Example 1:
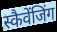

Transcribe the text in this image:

स्कैवेंजिंग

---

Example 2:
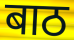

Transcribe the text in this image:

बाठ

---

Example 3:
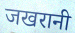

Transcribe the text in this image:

जखरानी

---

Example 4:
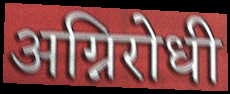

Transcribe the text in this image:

अग्निरोधी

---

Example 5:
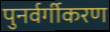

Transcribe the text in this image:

पुनर्वर्गीकरण